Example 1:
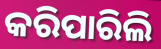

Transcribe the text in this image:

କରିପାରିଲି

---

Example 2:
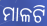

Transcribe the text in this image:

ମାଳଟି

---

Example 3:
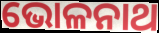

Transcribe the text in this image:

ଭୋଳନାଥ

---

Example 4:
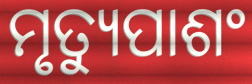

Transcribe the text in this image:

ମୃତ୍ୟୁପାଶଂ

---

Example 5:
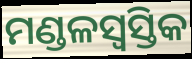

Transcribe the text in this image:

ମଣ୍ଡଳସ୍ୱସ୍ତିକ